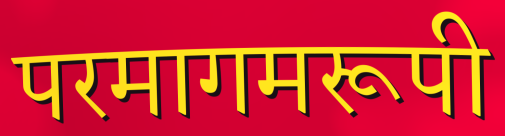
परमागमरूपी